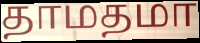
தாமதமா